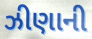
ઝીણાની